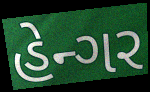
હેન્ગર